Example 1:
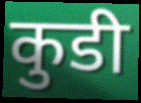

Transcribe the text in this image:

कुडी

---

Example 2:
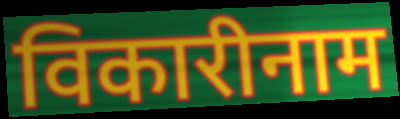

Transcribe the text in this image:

विकारीनाम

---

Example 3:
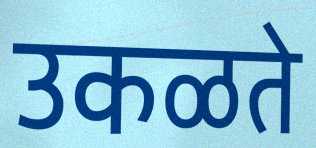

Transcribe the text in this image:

उकळते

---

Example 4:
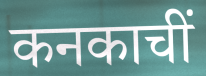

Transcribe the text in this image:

कनकाचीं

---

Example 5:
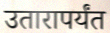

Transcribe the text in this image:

उतारापर्यंत